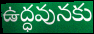
ఉద్ధవునకు